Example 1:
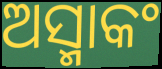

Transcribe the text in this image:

ଅସ୍ମାକଂ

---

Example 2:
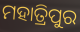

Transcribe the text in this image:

ମହାତ୍ରିପୁର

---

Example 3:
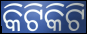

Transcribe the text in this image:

କିଟିକିଟି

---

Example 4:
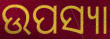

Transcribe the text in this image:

ଉପସ୍ୟା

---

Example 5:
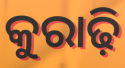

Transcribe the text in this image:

କୁରାଢ଼ି